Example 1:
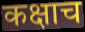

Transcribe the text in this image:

कक्षाच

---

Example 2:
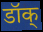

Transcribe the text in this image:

डॉक्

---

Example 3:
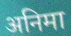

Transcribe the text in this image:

अनिमा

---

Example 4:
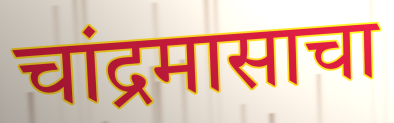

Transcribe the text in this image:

चांद्रमासाचा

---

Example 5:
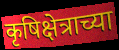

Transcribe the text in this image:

कृषिक्षेत्राच्या